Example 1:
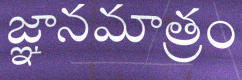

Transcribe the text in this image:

జ్ఞానమాత్రం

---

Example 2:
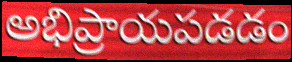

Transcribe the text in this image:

అభిప్రాయపడడం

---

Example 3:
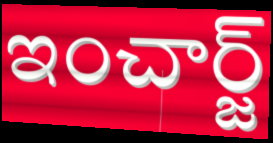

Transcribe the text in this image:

ఇంచార్జ్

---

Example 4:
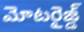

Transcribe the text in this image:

మోటరైజ్డ్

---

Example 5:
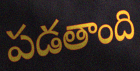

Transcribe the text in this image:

పడతాంది